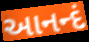
આનન્દં